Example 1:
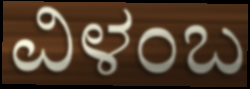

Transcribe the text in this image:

ವಿಳಂಬ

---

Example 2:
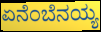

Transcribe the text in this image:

ಏನೆಂಬೆನಯ್ಯ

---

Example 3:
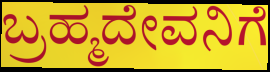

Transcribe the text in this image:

ಬ್ರಹ್ಮದೇವನಿಗೆ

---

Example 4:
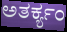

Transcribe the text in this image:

ಅತರ್ಕ್ಯಂ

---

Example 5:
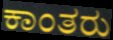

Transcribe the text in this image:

ಕಾಂತರು